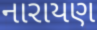
નારાયણ